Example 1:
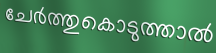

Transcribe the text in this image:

ചേർത്തുകൊടുത്താൽ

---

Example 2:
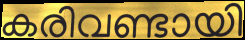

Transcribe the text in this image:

കരിവണ്ടായി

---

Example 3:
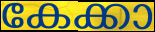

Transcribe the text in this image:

കേക്കാ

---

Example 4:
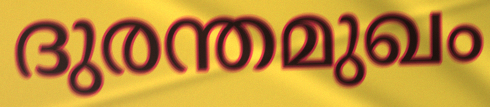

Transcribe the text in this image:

ദുരന്തമുഖം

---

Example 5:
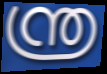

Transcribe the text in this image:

ന്ത്ര